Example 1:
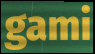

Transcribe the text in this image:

gami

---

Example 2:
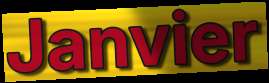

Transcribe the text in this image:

Janvier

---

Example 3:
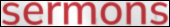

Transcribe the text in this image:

sermons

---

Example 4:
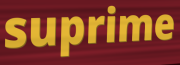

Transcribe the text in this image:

suprime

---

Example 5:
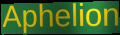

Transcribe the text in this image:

Aphelion